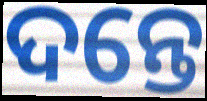
ଦନ୍ତେ